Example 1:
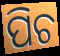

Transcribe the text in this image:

ପିଚ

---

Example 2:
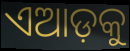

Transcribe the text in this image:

ଏଆଡ଼କୁ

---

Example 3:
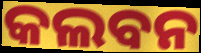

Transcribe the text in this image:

କଲବନ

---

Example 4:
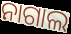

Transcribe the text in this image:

ନାଗାଲ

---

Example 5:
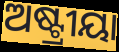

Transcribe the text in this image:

ଅଷ୍ଟ୍ରୀୟା